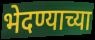
भेदण्याच्या